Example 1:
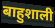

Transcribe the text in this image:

बाहुशाली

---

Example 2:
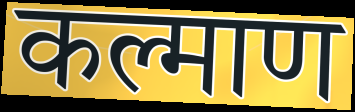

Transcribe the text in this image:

कल्माण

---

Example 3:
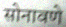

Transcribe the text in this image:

सोनावणे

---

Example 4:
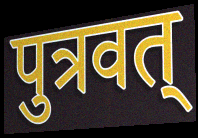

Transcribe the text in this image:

पुत्रवत्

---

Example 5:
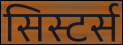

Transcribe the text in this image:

सिस्टर्स